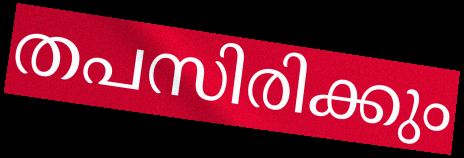
തപസിരിക്കും